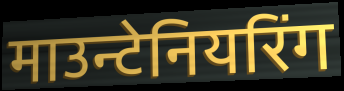
माउन्टेनियरिंग